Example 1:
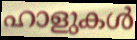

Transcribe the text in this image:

ഹാളുകൾ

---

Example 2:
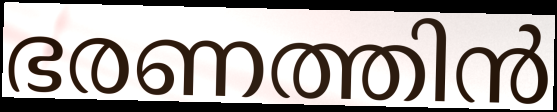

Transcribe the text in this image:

ഭരണത്തിൻ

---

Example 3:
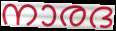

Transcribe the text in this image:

നാരദ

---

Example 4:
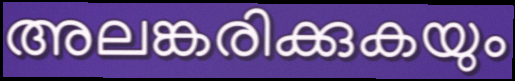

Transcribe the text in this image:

അലങ്കരിക്കുകയും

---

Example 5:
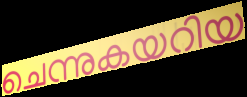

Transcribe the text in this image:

ചെന്നുകയറിയ